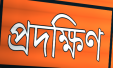
প্ৰদক্ষিণ